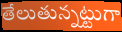
తేలుతున్నట్టుగా